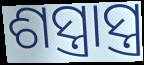
ଶସ୍ତ୍ରାସ୍ତ୍ର